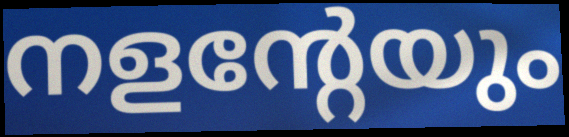
നളന്റേയും